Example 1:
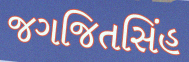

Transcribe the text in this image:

જગજિતસિંહ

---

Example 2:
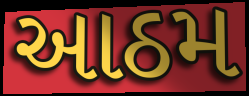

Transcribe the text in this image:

આઠમ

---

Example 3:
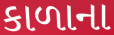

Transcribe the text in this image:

કાળાના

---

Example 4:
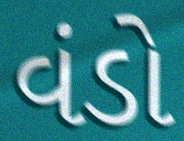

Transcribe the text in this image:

વંડો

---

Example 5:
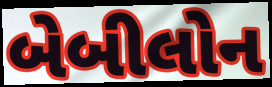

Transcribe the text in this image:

બેબીલોન